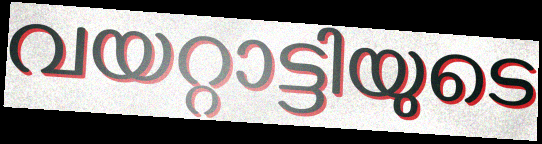
വയറ്റാട്ടിയുടെ